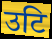
उटि